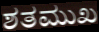
ಶತಮುಖ